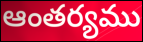
ఆంతర్యము